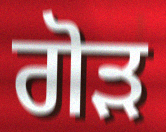
ਗੋੜ